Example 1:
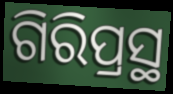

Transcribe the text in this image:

ଗିରିପ୍ରସ୍ଥ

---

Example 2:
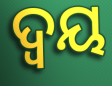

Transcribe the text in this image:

ଦ୍ୱୟ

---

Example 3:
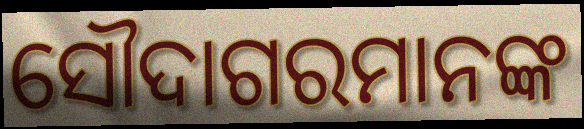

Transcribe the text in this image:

ସୌଦାଗରମାନଙ୍କ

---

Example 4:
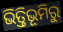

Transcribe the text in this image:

ଭିତ୍ତିଭୂମିରୁ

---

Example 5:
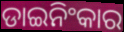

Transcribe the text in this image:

ଡାଇନିଂକାର